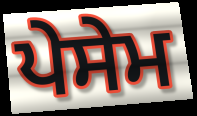
ਪੇਸੇਮ